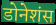
डोनेशंस